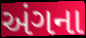
અંગના